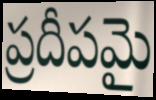
ప్రదీపమై